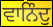
ਵਾਨਿੰਦੁ